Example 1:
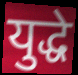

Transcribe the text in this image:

युद्धे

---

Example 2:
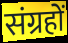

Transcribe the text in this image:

संग्रहों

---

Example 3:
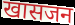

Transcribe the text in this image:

खासजन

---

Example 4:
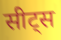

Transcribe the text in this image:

सीट्स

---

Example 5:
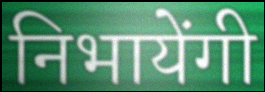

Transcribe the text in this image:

निभायेंगी